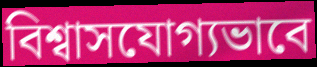
বিশ্বাসযোগ্যভাবে